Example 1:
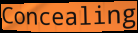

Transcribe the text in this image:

Concealing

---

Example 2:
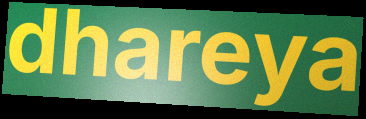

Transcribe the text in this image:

dhareya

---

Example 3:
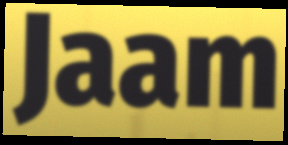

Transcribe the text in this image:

Jaam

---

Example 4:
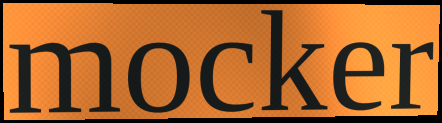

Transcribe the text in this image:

mocker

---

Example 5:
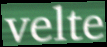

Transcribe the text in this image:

velte